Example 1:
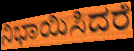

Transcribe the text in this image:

ನಿಭಾಯಿಸಿದರೆ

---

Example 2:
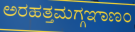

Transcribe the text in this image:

ಅರಹತ್ತಮಗ್ಗಞಾಣಂ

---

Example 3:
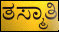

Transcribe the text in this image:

ತಸ್ಮಾತಿ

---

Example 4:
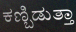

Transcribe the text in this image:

ಕಣ್ಬಿಡುತ್ತಾ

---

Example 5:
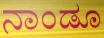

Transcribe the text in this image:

ನಾಂಡೂ